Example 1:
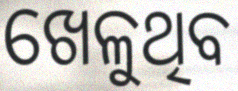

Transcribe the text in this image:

ଖେଳୁଥିବ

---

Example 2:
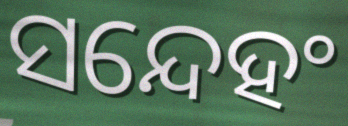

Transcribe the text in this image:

ସନ୍ଦେହଂ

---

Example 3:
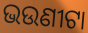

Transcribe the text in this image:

ଭଉଣୀଟା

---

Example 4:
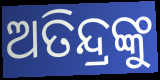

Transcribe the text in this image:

ଅତିନ୍ଦ୍ରଙ୍କୁ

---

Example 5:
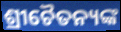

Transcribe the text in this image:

ଶ୍ରୀଚୈତନ୍ୟଙ୍କ